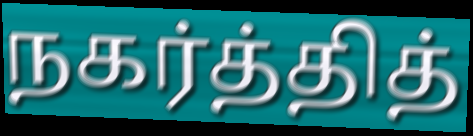
நகர்த்தித்